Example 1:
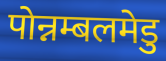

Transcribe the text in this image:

पोन्नम्बलमेडु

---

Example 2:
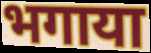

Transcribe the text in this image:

भगाया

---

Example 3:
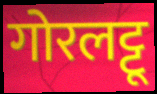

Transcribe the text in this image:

गोरलट्टू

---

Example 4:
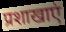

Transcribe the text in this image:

प्रशाखाएं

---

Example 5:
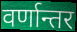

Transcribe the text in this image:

वर्णान्तर